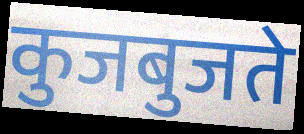
कुजबुजते